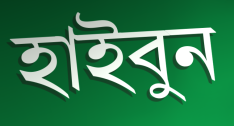
হাইবুন